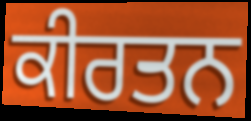
ਕੀਰਤਨ